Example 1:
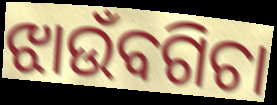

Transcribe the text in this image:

ଝାଉଁବଗିଚା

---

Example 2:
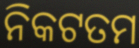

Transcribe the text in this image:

ନିକଟତମ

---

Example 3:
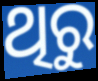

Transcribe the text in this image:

ଥିରୁ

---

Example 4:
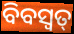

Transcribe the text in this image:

ବିବସ୍ଵତ୍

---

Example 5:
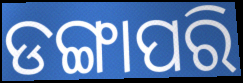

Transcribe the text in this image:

ଡଙ୍ଗାପରି